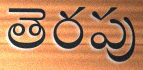
తెరపు